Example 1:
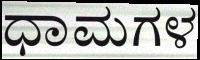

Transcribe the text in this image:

ಧಾಮಗಳ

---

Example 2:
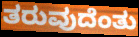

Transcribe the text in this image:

ತರುವುದೆಂತು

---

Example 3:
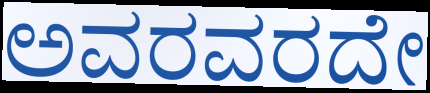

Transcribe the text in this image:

ಅವರವರದೇ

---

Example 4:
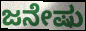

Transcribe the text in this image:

ಜನೇಷು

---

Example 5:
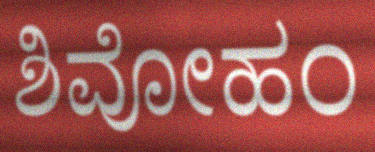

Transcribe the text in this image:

ಶಿವೋಹಂ